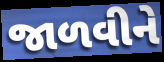
જાળવીને